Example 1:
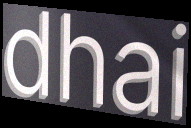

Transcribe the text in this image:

dhai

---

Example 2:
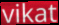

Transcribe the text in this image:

vikat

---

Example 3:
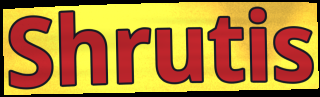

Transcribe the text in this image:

Shrutis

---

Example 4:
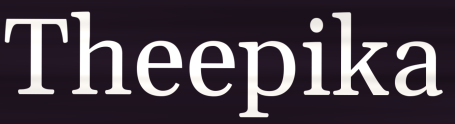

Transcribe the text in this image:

Theepika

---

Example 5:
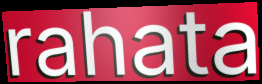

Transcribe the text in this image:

rahata